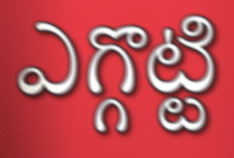
ఎగ్గొట్టి